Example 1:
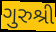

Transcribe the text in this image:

ગુરુશ્રી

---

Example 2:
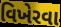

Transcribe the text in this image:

વિખેરવા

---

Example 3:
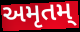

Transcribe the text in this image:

અમૃતમ્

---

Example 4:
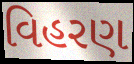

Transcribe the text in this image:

વિહરણ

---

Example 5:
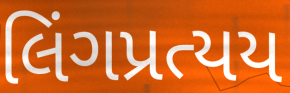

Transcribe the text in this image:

લિંગપ્રત્યય